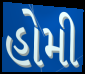
હોમી